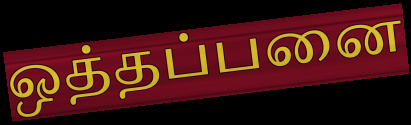
ஒத்தப்பனை